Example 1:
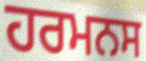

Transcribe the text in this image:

ਹਰਮਨਸ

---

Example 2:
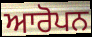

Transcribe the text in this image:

ਆਰੋਪਨ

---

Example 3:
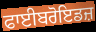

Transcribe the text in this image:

ਫਾਈਬਰੋਇਡਜ਼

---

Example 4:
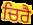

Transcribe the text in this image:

ਚਿਰੈ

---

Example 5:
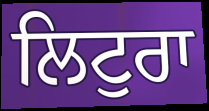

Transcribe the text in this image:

ਲਿਟੁਰਾ